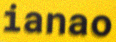
ianao